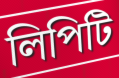
লিপিটি